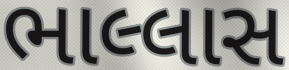
ભાલ્લાસ